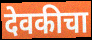
देवकीचा